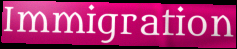
Immigration